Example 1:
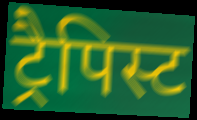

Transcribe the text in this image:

ट्रैपिस्ट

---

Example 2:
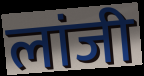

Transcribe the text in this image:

लांजी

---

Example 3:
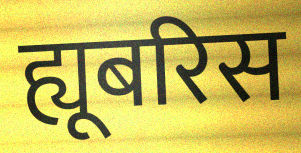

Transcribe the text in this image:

ह्यूबरिस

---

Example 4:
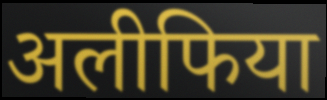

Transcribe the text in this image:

अलीफिया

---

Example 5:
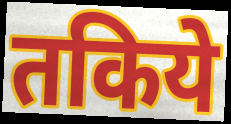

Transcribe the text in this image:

तकिये